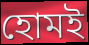
হোমই